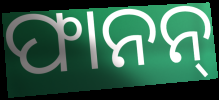
ଫାନନ୍